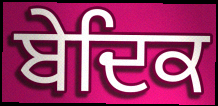
ਬੇਦਿਕ